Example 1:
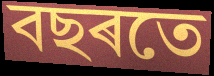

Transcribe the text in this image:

বছৰতে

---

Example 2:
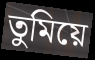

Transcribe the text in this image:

তুমিয়ে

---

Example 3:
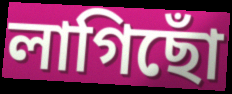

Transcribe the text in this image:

লাগিছোঁ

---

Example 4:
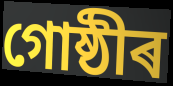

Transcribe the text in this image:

গোষ্ঠীৰ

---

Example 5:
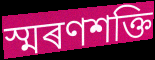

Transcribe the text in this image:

স্মৰণশক্তি